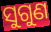
ସୁଗୁଣ